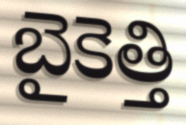
బైకెత్తి